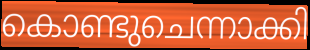
കൊണ്ടുചെന്നാക്കി